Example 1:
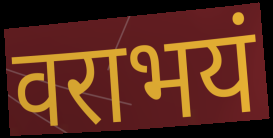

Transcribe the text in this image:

वराभयं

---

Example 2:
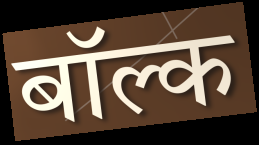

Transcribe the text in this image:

बॉल्क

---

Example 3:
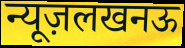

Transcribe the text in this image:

न्यूज़लखनऊ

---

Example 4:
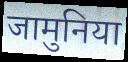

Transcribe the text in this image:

जामुनिया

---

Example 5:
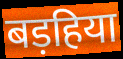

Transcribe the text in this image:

बड़हिया